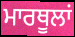
ਮਾਰਥੂਲਾਂ